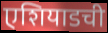
एशियाडची